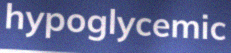
hypoglycemic